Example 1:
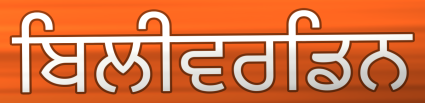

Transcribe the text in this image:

ਬਿਲੀਵਰਡਿਨ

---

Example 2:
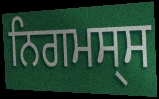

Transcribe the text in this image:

ਨਿਗਮਸ੍ਸ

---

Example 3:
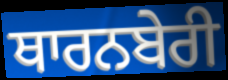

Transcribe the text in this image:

ਥਾਰਨਬੇਰੀ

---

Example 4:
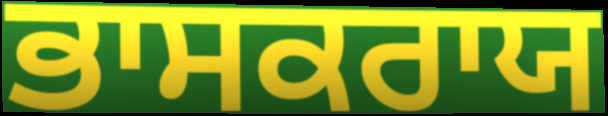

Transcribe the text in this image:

ਭਾਸਕਰਾਯ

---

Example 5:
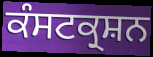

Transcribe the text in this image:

ਕੰਸਟਕ੍ਰਸ਼ਨ